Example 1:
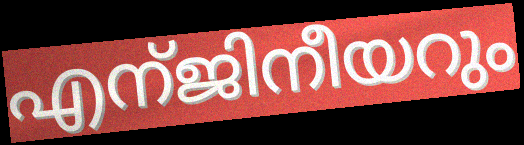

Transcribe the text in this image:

എന്ജിനീയറും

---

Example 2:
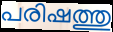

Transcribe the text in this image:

പരിഷത്തു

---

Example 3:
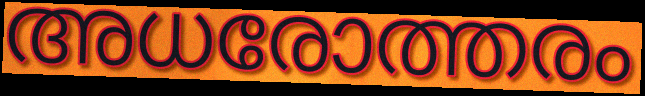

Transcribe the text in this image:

അധരോത്തരം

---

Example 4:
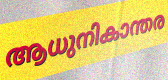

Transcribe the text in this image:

ആധുനികാന്തര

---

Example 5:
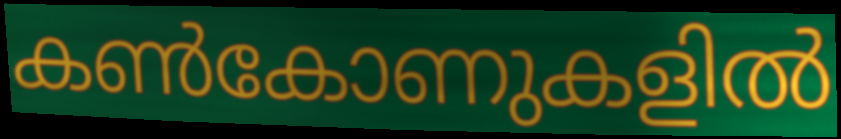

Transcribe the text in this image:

കൺകോണുകളിൽ